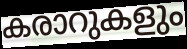
കരാറുകളും